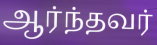
ஆர்ந்தவர்